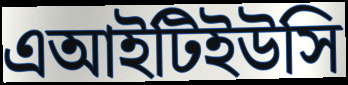
এআইটিইউসি